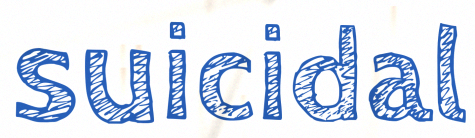
suicidal